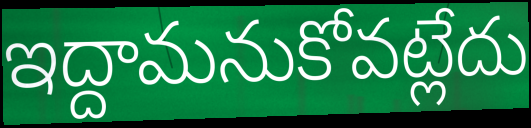
ఇద్దామనుకోవట్లేదు